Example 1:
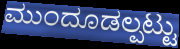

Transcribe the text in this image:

ಮುಂದೂಡಲ್ಪಟ್ಟು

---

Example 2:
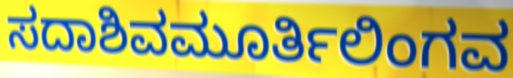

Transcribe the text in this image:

ಸದಾಶಿವಮೂರ್ತಿಲಿಂಗವ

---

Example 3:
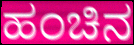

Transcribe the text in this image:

ಹಂಚಿನ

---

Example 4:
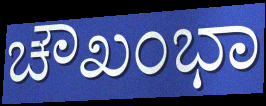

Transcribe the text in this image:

ಚೌಖಂಭಾ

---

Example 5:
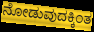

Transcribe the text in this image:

ನೋಡುವುದಕ್ಕಿಂತ